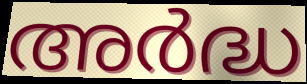
അർദ്ധ